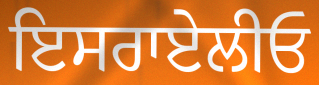
ਇਸਰਾਏਲੀਓ